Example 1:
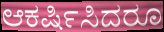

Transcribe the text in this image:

ಆಕರ್ಷಿಸಿದರೂ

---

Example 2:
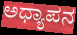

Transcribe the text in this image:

ಅಧ್ಯಾಪನ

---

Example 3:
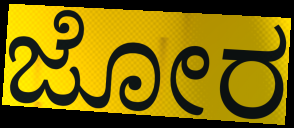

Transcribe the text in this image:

ಜೋರ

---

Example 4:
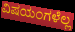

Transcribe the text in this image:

ವಿಷಯಂಗಳೆಲ್ಲ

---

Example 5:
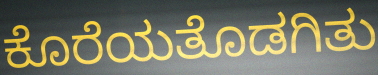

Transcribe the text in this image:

ಕೊರೆಯತೊಡಗಿತು